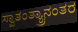
ಸ್ವಾತಂತ್ಯ್ರಾನಂತರ